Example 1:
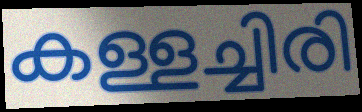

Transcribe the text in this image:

കള്ളച്ചിരി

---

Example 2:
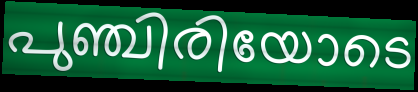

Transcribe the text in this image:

പുഞ്ചിരിയോടെ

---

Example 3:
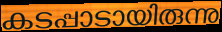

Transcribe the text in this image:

കടപ്പാടായിരുന്നു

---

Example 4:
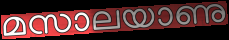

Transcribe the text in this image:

മസാലയാണു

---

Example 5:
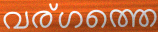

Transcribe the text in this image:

വര്ഗത്തെ